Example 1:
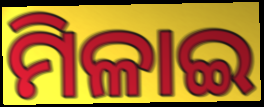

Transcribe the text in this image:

ମିଳାଇ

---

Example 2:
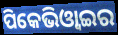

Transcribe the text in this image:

ପିକେଭିଓ୍ବାଇର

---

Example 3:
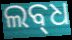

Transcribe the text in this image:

ଲବ୍‌ଧ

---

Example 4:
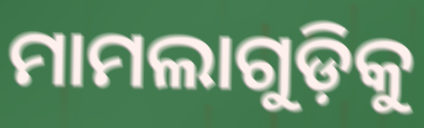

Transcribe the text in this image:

ମାମଲାଗୁଡ଼ିକୁ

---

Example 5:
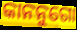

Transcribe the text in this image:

କାନନୁଗୋ